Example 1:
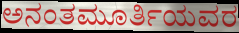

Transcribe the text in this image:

ಅನಂತಮೂರ್ತಿಯವರ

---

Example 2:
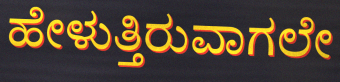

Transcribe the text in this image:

ಹೇಳುತ್ತಿರುವಾಗಲೇ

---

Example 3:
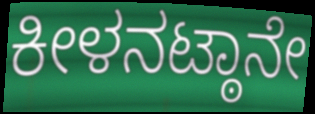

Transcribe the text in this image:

ಕೀಳನಟ್ಠಾನೇ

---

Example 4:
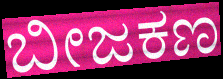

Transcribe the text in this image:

ಬೀಜಕಣ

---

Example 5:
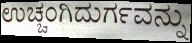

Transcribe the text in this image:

ಉಚ್ಚಂಗಿದುರ್ಗವನ್ನು